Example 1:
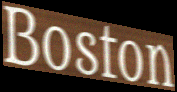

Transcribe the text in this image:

Boston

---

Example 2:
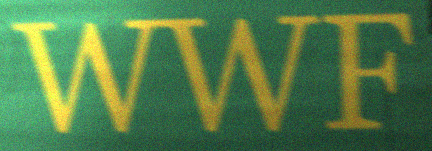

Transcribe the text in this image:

WWF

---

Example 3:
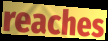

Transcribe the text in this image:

reaches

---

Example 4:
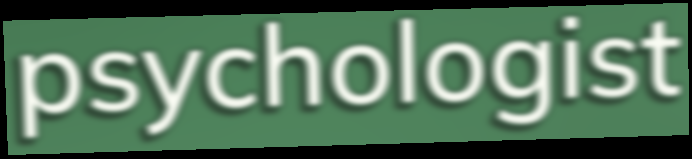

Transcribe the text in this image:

psychologist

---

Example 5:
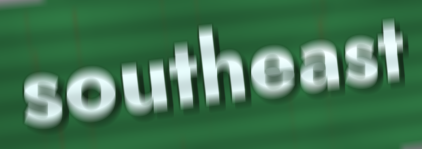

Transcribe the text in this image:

southeast